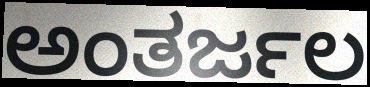
ಅಂತರ್ಜಲ